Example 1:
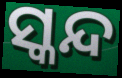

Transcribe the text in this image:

ସ୍କନ୍ଦ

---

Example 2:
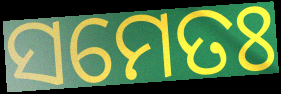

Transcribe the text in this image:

ସମେତଃ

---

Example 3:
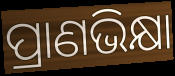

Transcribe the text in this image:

ପ୍ରାଣଭିକ୍ଷା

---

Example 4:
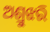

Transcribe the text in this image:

ଅଶ୍ରୁଝରି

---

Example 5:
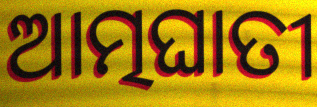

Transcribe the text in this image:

ଆତ୍ମଘାତୀ